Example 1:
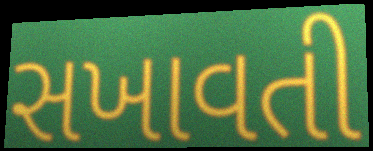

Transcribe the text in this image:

સખાવતી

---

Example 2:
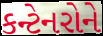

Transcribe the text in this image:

કન્ટેનરોને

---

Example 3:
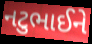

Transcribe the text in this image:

નટુભાઈને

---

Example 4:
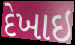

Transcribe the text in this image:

દેખાઇ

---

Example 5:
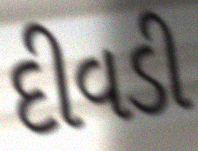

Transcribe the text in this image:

દીવડી